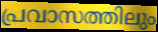
പ്രവാസത്തിലും